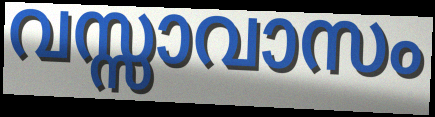
വസ്സാവാസം